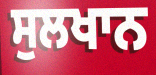
ਸੁਲਖਾਨ